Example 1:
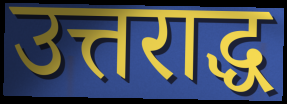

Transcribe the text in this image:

उत्तराद्ध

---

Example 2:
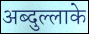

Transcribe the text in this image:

अब्दुल्लाके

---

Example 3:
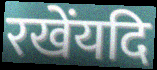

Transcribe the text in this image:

रखेंयदि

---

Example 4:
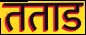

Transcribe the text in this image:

तताड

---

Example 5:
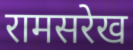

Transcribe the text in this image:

रामसरेख